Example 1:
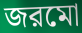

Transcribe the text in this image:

জরমো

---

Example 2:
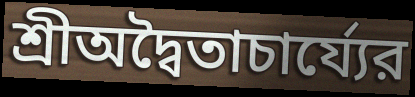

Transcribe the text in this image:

শ্রীঅদ্বৈতাচার্য্যের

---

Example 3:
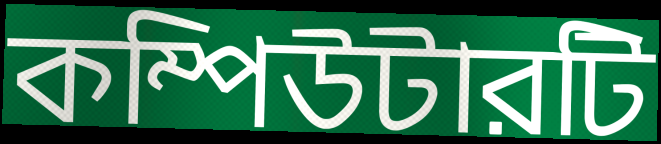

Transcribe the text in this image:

কম্পিউটারটি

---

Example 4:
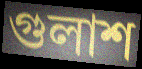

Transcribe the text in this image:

গুলাশ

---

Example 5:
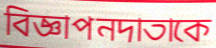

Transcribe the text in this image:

বিজ্ঞাপনদাতাকে